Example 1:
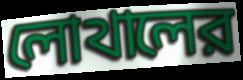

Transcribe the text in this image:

লোথালের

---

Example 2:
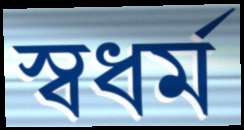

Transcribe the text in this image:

স্বধর্ম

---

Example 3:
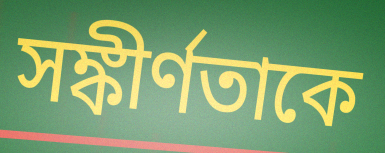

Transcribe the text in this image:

সঙ্কীর্ণতাকে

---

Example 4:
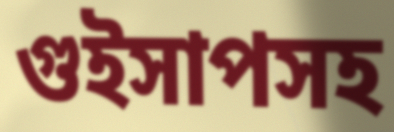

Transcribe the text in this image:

গুইসাপসহ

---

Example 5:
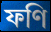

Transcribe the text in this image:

ফণি